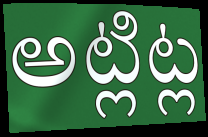
అట్లిట్ల